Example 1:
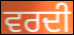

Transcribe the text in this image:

ਵਰਦੀ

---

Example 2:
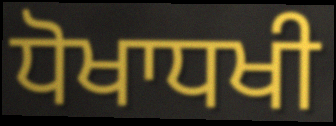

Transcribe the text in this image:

ਧੋਖਾਧਖੀ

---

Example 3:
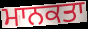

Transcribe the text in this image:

ਮਾਨਕਤਾ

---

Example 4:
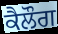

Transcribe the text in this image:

ਕੈਲੌਗ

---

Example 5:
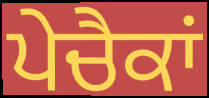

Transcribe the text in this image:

ਪੇਚੈਕਾਂ